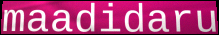
maadidaru